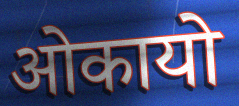
ओकायो